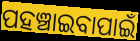
ପହଞ୍ଚାଇବାପାଇଁ